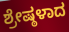
ಶ್ರೇಷ್ಠಳಾದ